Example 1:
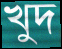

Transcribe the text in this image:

খুদ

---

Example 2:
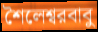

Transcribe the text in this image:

শৈলেশ্বরবাবু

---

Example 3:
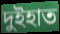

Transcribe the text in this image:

দুইহাত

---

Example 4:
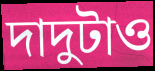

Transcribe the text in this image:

দাদুটাও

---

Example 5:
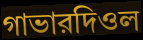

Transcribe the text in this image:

গাভারদিওল